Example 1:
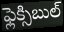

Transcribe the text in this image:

ఫ్లెక్సిబుల్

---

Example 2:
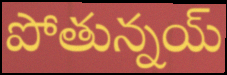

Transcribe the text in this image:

పోతున్నయ్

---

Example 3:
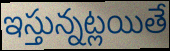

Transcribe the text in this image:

ఇస్తున్నట్లయితే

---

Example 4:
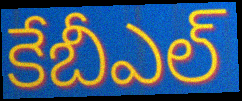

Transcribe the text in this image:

కేబీఎల్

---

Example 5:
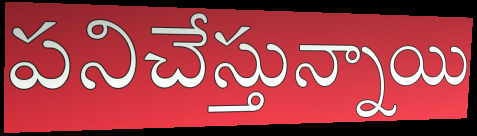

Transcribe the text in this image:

పనిచేస్తున్నాయి